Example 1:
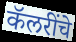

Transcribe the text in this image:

कॅलरींचे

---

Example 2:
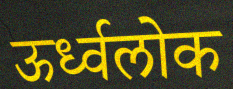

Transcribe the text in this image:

ऊर्ध्वलोक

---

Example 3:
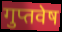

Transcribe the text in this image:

गुप्तवेष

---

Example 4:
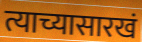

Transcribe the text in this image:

त्याच्यासारखं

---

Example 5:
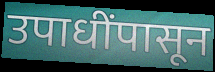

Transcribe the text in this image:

उपाधींपासून